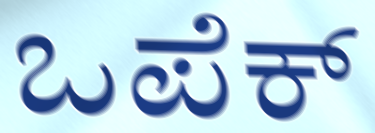
ಒಪೆಕ್